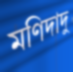
মণিদাদু